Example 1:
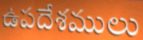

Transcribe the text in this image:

ఉపదేశములు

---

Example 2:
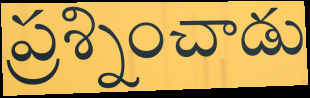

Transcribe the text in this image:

ప్రశ్నించాడు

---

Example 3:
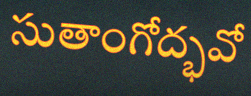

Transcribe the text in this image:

సుతాంగోద్భవో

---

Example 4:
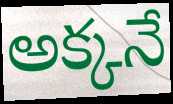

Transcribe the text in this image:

అక్కనే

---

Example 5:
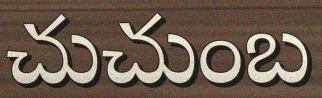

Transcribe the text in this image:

చుచుంబ